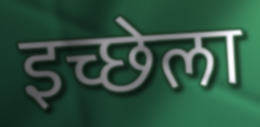
इच्छेला